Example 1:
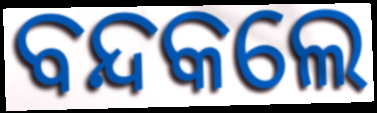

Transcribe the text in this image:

ବନ୍ଦକଲେ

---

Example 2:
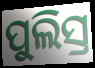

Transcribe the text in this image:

ପୁଲିସ୍ର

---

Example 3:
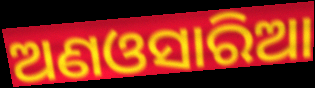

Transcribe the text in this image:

ଅଣଓସାରିଆ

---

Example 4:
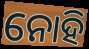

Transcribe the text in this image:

ନୋହି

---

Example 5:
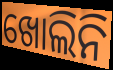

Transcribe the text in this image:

ଖୋଲିନି